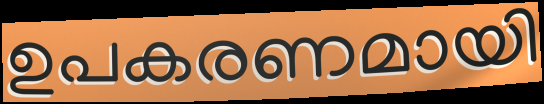
ഉപകരണമായി